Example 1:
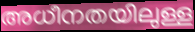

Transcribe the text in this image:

അധീനതയിലുള്ള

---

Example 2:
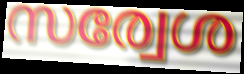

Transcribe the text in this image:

സര്വേശ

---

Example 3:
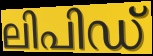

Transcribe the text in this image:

ലിപിഡ്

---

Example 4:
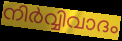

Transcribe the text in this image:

നിർവ്വിവാദം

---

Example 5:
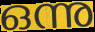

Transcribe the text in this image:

ഒന്നു